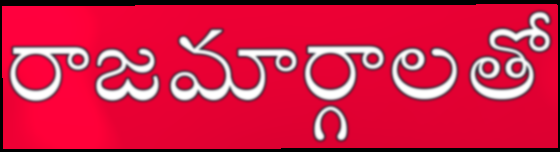
రాజమార్గాలతో